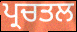
ਪ੍ਰਚਤਲ